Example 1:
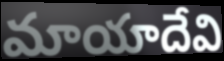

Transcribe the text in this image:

మాయాదేవి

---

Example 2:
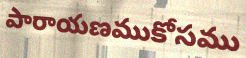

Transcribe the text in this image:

పారాయణముకోసము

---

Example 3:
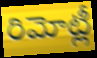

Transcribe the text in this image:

రిమోట్లీ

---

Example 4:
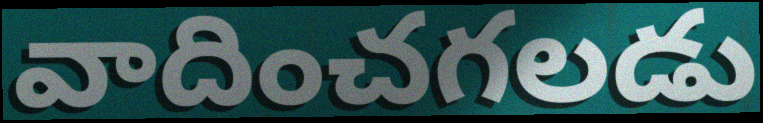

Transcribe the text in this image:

వాదించగలడు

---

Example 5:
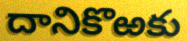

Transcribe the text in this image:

దానికొఱకు